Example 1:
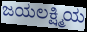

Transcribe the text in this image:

ಜಯಲಕ್ಷ್ಮಿಯ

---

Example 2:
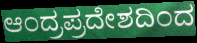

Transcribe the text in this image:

ಆಂದ್ರಪ್ರದೇಶದಿಂದ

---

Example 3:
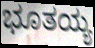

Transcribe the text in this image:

ಭೂತಯ್ಯ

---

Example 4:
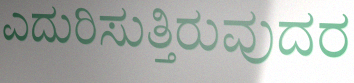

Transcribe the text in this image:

ಎದುರಿಸುತ್ತಿರುವುದರ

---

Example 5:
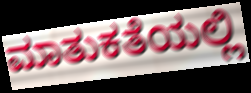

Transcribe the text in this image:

ಮಾತುಕತೆಯಲ್ಲಿ